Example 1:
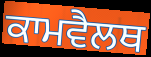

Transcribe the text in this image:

ਕਾਮਵੈਲਥ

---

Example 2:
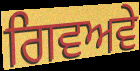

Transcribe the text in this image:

ਗਿਵਅਵੇ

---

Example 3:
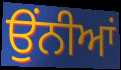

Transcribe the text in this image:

ਉੰਨੀਆਂ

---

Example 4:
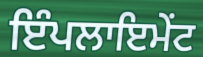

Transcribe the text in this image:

ਇੰਪਲਾਇਮੇਂਟ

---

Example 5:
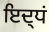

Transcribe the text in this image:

ਇਦ੍ਧਂ